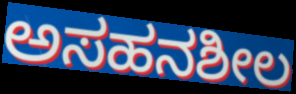
ಅಸಹನಶೀಲ